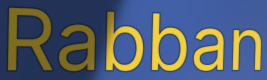
Rabban